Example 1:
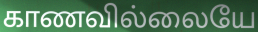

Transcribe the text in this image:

காணவில்லையே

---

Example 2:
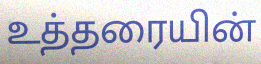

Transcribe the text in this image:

உத்தரையின்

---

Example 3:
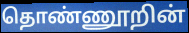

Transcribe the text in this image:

தொண்ணூறின்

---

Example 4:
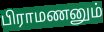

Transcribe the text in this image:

பிராமணனும்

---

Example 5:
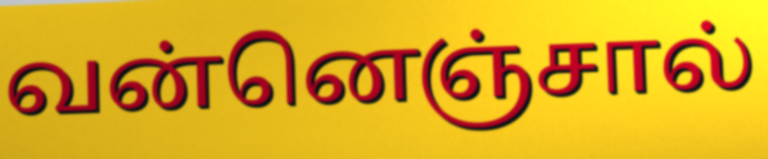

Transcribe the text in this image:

வன்னெஞ்சால்